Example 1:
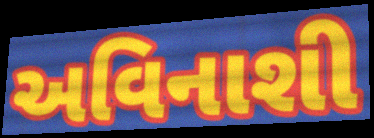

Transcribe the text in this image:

અવિનાશી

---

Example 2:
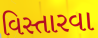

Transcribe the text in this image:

વિસ્તારવા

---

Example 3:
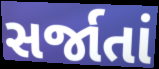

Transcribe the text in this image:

સર્જાતાં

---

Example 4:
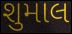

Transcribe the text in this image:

શુમાલ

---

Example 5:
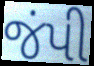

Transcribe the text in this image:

જંપી